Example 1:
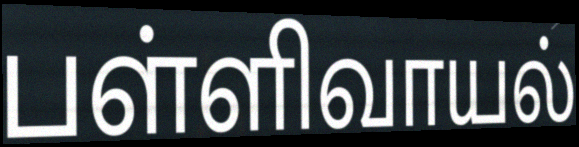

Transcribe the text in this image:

பள்ளிவாயல்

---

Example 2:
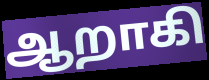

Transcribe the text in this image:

ஆறாகி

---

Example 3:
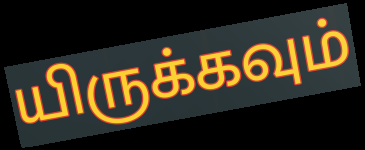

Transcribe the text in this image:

யிருக்கவும்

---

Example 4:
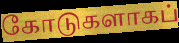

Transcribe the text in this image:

கோடுகளாகப்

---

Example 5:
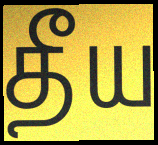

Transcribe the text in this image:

தீய